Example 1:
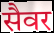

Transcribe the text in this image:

सैवर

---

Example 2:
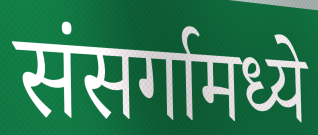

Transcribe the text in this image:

संसर्गामध्ये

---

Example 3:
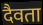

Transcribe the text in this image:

दैवता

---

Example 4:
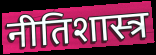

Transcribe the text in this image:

नीतिशास्त्र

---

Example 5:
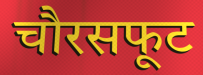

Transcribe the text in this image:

चौरसफूट